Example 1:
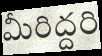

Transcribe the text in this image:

మీరిద్దరి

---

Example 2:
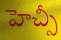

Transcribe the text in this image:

హెచ్సీ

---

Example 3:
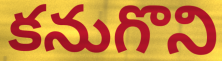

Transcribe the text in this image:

కనుగొని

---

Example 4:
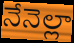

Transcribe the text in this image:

నేనెల్లా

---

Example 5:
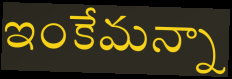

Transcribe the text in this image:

ఇంకేమన్నా